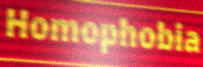
Homophobia